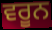
ਵਰੂਨ